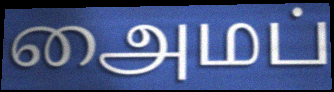
அைமப்